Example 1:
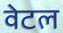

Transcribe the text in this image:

वेटल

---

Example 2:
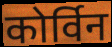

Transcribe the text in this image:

कोर्विन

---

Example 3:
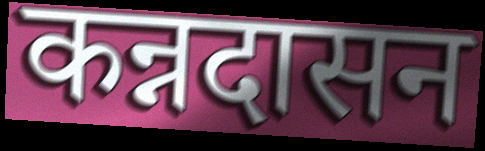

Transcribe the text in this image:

कन्नदासन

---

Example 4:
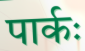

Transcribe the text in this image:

पार्कः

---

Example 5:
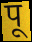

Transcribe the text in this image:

पू